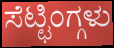
ಸೆಟ್ಟಿಂಗ್ಗಳು